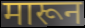
मारून